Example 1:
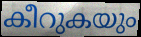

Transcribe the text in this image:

കീറുകയും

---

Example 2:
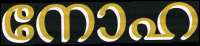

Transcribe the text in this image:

നോഹ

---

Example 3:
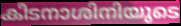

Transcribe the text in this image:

കീടനാശിനിയുടെ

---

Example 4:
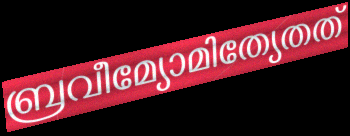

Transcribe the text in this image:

ബ്രവീമ്യോമിത്യേതത്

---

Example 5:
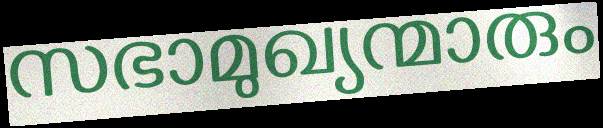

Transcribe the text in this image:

സഭാമുഖ്യന്മാരും